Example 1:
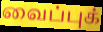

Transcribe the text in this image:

வைப்புக்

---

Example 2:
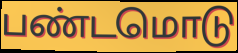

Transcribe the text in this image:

பண்டமொடு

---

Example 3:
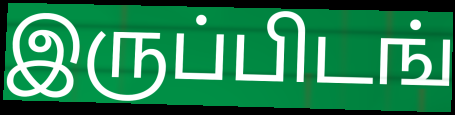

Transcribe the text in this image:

இருப்பிடங்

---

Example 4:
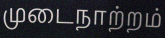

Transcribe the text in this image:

முடைநாற்றம்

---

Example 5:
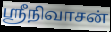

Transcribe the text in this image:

ஸ்ரீநிவாசன்